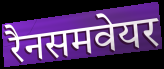
रैनसमवेयर